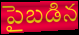
పైబడిన